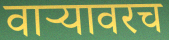
वाऱ्यावरच